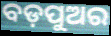
ବଡ଼ପୁଅର